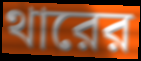
থারের